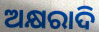
ଅକ୍ଷରାଦି